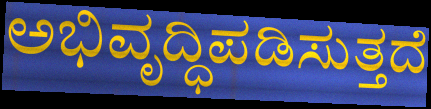
ಅಭಿವೃದ್ಧಿಪಡಿಸುತ್ತದೆ